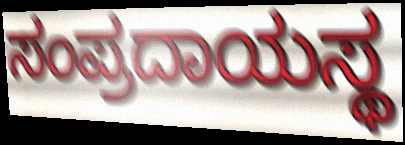
ಸಂಪ್ರದಾಯಸ್ಥ